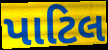
પાટિલ